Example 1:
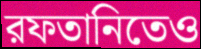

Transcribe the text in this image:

রফতানিতেও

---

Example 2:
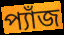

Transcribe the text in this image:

প্যাঁজ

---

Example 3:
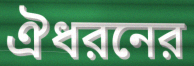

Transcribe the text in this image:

ঐধরনের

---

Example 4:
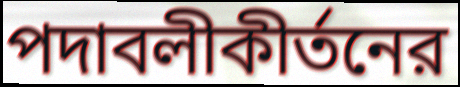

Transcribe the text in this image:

পদাবলীকীর্তনের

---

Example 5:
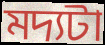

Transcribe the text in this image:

মদ্যটা